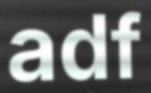
adf